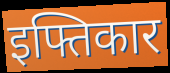
इफ्तिकार